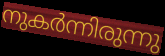
നുകർന്നിരുന്നു